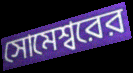
সোমেশ্বরের